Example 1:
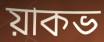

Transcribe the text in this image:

য়াকভ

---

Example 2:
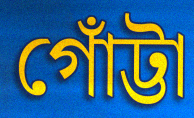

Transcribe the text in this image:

গোঁট্টা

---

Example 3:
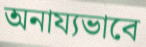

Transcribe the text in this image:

অনায্যভাবে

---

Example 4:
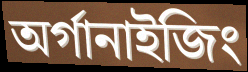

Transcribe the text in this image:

অর্গানাইজিং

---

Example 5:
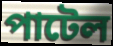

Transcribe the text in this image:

পাটেল